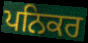
ਪਨਿਕਰ